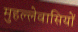
मुहल्लेवासियों